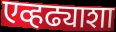
एव्हढ्याशा